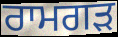
ਰਾਮਗੜ